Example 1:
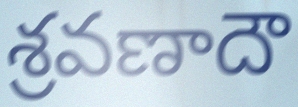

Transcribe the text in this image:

శ్రవణాదౌ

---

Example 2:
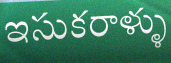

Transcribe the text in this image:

ఇసుకరాళ్ళు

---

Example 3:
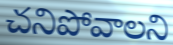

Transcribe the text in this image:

చనిపోవాలని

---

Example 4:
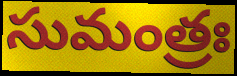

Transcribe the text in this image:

సుమంత్రః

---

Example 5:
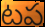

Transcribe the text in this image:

టప